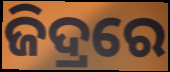
ଜିଦ୍ରରେ